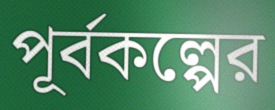
পূর্বকল্পের